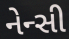
નેન્સી